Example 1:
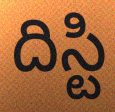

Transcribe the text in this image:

దిస్టి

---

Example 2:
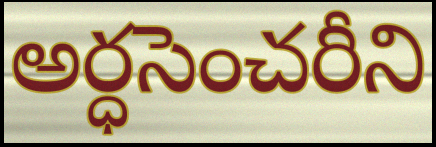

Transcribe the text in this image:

అర్ధసెంచరీని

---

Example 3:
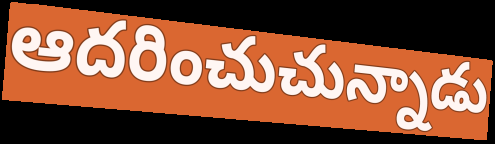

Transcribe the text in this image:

ఆదరించుచున్నాడు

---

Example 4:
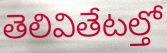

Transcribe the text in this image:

తెలివితేటల్తో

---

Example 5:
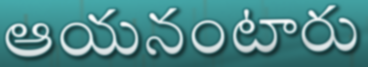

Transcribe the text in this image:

ఆయనంటారు